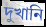
দুখানি